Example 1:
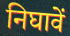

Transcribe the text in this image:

निघावें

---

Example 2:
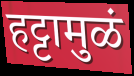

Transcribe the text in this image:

हट्टामुळं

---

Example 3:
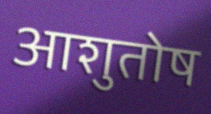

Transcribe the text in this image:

आशुतोष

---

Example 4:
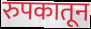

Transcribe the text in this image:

रुपकातून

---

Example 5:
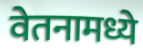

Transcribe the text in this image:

वेतनामध्ये